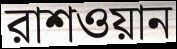
রাশওয়ান